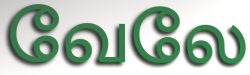
வேலே